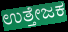
ಉತ್ತೇಜಕ